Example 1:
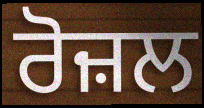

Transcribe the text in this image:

ਰੋਜ਼ਲ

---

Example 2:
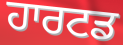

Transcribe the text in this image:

ਹਾਰਟਡ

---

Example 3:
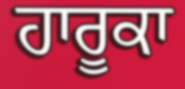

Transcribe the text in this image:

ਹਾਰੂਕਾ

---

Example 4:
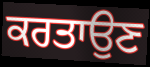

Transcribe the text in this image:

ਕਰਤਾਉਣ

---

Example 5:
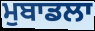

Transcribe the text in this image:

ਮੁਬਾਡਲਾ